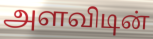
அளவிடின்